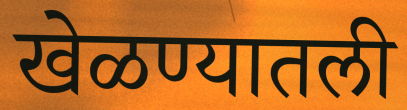
खेळण्यातली